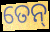
ତେନ୍